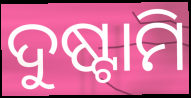
ଦୁଷ୍ଟାମି